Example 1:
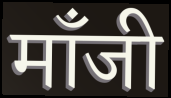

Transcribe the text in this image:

मॉंजी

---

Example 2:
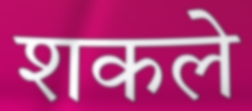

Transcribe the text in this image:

शकले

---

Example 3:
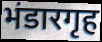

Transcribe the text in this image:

भंडारगृह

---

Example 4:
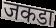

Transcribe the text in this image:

जकडा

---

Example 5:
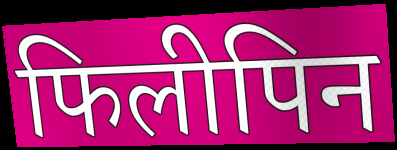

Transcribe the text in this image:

फिलीपिन